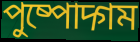
পুষ্পোদ্গম